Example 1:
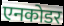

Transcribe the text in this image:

एनकोडर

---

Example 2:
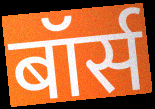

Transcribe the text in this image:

बॉर्स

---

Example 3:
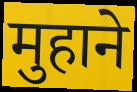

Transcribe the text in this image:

मुहाने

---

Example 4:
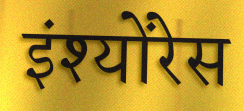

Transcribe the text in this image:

इंश्योंरेस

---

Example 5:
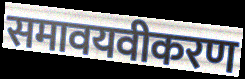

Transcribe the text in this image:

समावयवीकरण